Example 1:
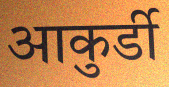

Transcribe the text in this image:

आकुर्डी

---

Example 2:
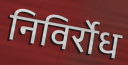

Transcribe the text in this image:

निविर्रोध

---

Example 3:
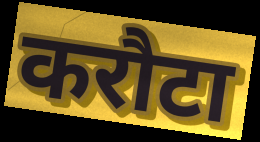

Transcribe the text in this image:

करौटा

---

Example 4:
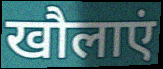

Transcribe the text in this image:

खौलाएं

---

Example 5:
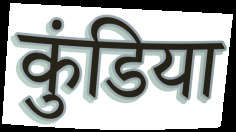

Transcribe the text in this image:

कुंडिया